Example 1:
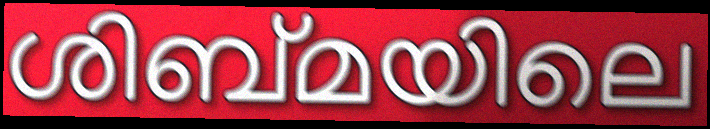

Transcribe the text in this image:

ശിബ്മയിലെ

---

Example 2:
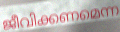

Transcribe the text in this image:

ജീവിക്കണമെന്ന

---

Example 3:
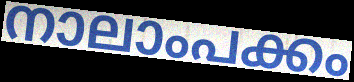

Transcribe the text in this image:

നാലാംപക്കം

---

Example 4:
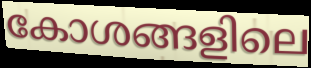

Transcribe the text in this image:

കോശങ്ങളിലെ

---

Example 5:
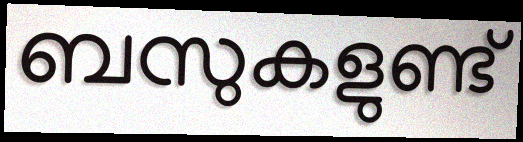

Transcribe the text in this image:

ബസുകളുണ്ട്